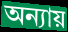
অন্যায়